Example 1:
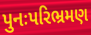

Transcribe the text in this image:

પુનઃપરિભ્રમણ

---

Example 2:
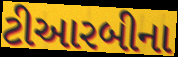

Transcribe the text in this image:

ટીઆરબીના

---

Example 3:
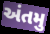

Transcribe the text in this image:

અંતમુ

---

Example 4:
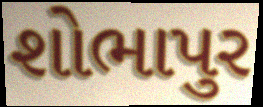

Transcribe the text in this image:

શોભાપુર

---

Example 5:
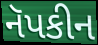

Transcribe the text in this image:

નૅપકીન